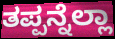
ತಪ್ಪನ್ನೆಲ್ಲಾ